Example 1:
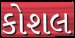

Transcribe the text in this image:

કોશલ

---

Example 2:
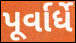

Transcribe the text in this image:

પૂર્વાર્ધે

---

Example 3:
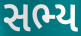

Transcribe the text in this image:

સભ્ય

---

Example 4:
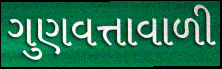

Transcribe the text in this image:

ગુણવત્તાવાળી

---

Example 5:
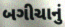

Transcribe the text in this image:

બગીચાનું